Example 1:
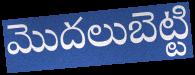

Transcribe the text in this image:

మొదలుబెట్టి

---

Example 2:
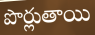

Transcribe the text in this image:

పొర్లుతాయి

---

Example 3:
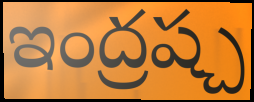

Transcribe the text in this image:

ఇంద్రష్చ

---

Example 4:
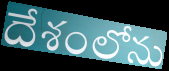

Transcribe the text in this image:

దేశంలోను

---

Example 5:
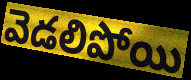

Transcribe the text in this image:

వెడలిపోయి